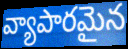
వ్యాపారమైన